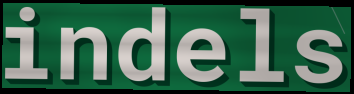
indels